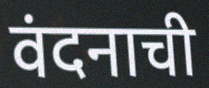
वंदनाची